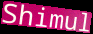
Shimul